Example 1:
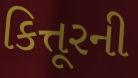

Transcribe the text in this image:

કિત્તૂરની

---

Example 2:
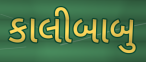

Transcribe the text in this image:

કાલીબાબુ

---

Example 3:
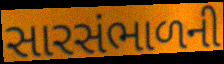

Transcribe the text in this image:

સારસંભાળની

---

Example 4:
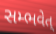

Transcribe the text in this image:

સમ્ભવેત્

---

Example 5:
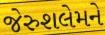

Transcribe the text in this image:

જેરુશલેમને